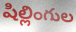
షిల్లింగుల